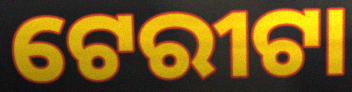
ଟେରୀଟା